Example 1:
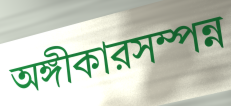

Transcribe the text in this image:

অঙ্গীকারসম্পন্ন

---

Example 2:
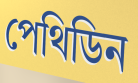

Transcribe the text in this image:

পেথিডিন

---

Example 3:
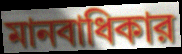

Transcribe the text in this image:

মানবাধিকার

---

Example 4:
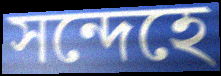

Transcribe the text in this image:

সন্দেহে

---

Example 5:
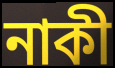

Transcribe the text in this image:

নাকী